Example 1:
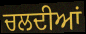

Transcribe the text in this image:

ਚਲਦੀਆਂ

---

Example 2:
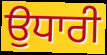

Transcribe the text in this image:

ਉਧਾਰੀ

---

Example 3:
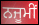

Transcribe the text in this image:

ਨਜੂਮੀਂ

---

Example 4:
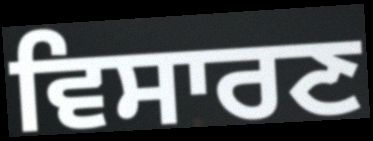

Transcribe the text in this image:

ਵਿਸਾਰਣ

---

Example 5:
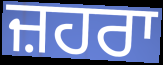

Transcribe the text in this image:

ਜ਼ਹਰਾ